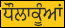
ਧੌਲਾਕੂੰਆਂ